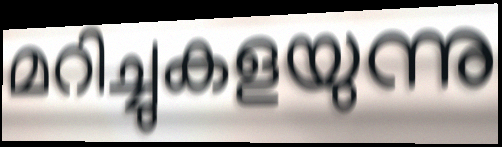
മറിച്ചുകളയുന്നു